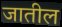
जातील